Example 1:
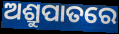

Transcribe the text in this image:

ଅଶ୍ରୁପାତରେ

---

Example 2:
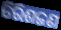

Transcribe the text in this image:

ତିରିଶଜଣ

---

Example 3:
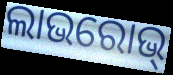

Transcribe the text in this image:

ଲାଭରୋଭ୍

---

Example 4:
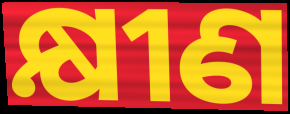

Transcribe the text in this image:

କ୍ଷୀଣ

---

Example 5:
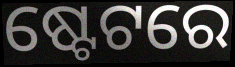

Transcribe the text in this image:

ଷ୍ଟେଟରେ